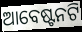
ଆବେଷ୍ଟନଟି